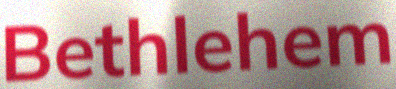
Bethlehem